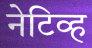
नेटिव्ह